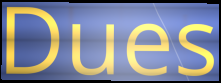
Dues